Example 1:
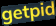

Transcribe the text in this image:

getpid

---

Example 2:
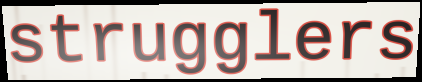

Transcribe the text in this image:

strugglers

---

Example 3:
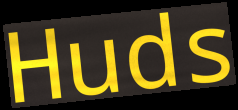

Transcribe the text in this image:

Huds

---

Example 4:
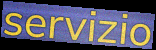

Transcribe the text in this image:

servizio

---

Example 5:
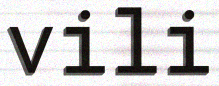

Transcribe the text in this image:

vili